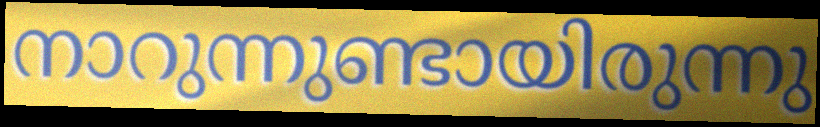
നാറുന്നുണ്ടായിരുന്നു